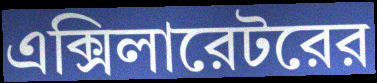
এক্সিলারেটরের